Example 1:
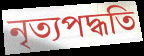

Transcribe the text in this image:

নৃত্যপদ্ধতি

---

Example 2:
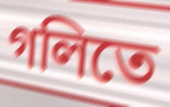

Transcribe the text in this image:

গলিতে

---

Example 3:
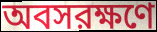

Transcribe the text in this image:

অবসরক্ষণে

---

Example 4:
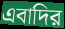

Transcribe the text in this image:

এবাদির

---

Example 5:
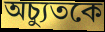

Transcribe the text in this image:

অচ্যুতকে